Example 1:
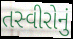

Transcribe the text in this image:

તસ્વીરોનું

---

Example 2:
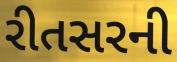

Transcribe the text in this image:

રીતસરની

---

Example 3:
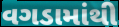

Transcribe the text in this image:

વગડામાંથી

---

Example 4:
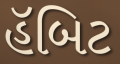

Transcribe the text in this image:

હૅબિટ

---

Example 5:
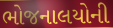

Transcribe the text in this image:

ભોજનાલયોની